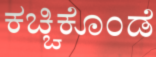
ಕಚ್ಚಿಕೊಂಡೆ